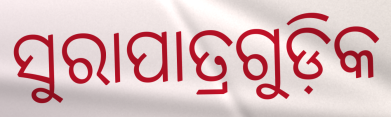
ସୁରାପାତ୍ରଗୁଡ଼ିକ